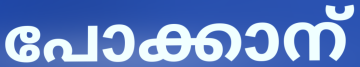
പോക്കാന്